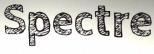
Spectre